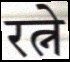
रत्ने